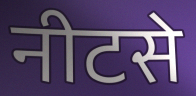
नीटसे